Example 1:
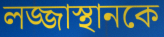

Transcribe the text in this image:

লজ্জাস্থানকে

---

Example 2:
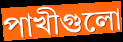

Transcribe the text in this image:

পাখীগুলো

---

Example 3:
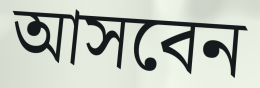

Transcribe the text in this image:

আসবেন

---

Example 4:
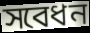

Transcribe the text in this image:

সবেধন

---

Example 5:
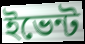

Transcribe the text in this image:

ইভেন্ট